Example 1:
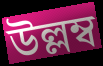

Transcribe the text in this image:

উল্লম্ব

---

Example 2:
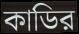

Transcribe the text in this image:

কাডির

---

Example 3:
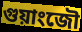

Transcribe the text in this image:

গুয়াংজৌ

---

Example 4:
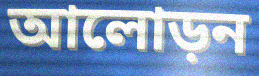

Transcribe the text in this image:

আলোড়ন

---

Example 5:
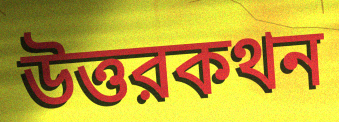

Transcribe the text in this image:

উত্তরকথন